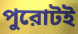
পুরোটই